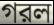
গরল